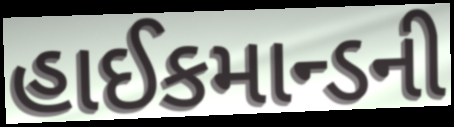
હાઈકમાન્ડની